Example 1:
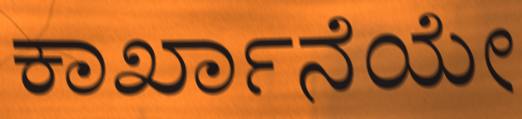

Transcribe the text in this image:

ಕಾರ್ಖಾನೆಯೇ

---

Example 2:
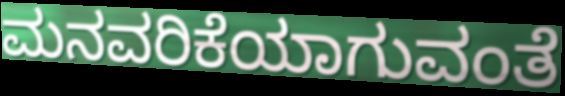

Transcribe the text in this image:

ಮನವರಿಕೆಯಾಗುವಂತೆ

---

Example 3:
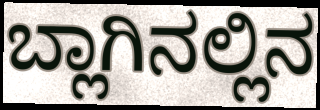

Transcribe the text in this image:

ಬ್ಲಾಗಿನಲ್ಲಿನ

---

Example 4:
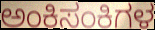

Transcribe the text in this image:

ಅಂಕಿಸಂಕಿಗಳ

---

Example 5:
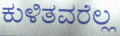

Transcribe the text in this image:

ಕುಳಿತವರೆಲ್ಲ